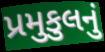
પ્રમુકુલનું